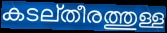
കടല്തീരത്തുള്ള